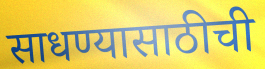
साधण्यासाठीची